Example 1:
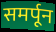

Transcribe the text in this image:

समर्पून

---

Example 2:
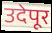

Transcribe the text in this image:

उदेपूर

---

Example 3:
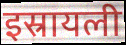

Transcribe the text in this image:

इस्रायली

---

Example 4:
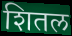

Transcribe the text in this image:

शितल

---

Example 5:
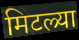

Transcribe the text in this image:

मिटल्या